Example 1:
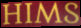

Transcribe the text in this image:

HIMS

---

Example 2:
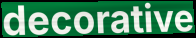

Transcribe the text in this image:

decorative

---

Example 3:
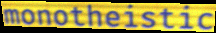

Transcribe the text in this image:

monotheistic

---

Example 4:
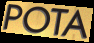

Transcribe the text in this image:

POTA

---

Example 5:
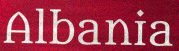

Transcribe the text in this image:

Albania